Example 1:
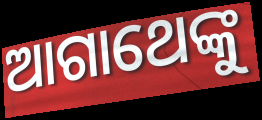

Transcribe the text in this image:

ଆଗାଥେଙ୍କୁ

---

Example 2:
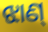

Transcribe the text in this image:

ଝାଣ୍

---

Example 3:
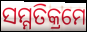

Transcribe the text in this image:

ସମ୍ମତିକ୍ରମେ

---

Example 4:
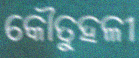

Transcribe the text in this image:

କୌତୁହଳୀ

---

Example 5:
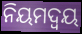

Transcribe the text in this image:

ନିୟମଦ୍ୱୟ